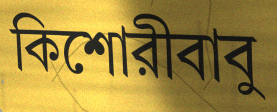
কিশোরীবাবু